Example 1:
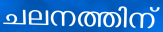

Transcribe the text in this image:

ചലനത്തിന്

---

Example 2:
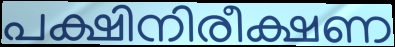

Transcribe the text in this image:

പക്ഷിനിരീക്ഷണ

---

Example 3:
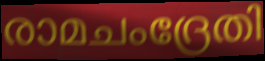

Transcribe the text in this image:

രാമചംദ്രേതി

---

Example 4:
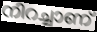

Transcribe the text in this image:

നിറച്ചാണ്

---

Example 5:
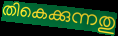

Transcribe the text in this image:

തികെക്കുന്നതു